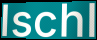
Ischl